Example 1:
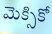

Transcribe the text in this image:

మెక్సికో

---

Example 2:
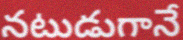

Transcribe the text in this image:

నటుడుగానే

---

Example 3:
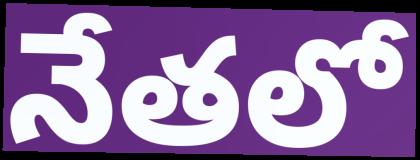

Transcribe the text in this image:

నేతలో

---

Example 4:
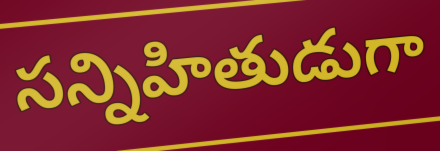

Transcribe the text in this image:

సన్నిహితుడుగా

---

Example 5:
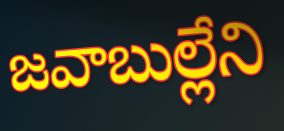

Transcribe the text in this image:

జవాబుల్లేని